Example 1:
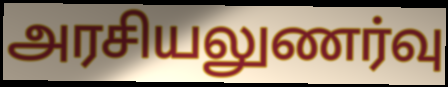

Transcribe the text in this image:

அரசியலுணர்வு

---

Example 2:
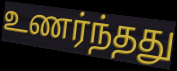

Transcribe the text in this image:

உணர்ந்தது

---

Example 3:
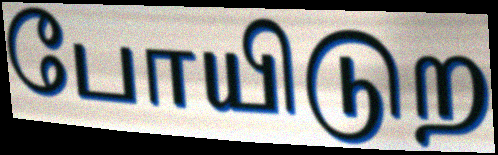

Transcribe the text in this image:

போயிடுற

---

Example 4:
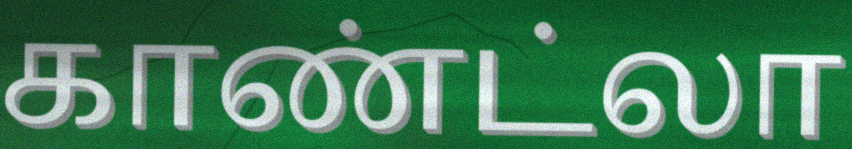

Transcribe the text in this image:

காண்ட்லா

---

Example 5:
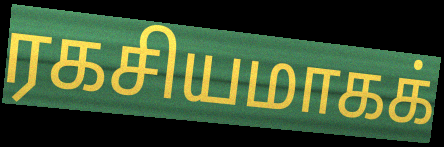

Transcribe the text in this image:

ரகசியமாகக்